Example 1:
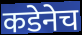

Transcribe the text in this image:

कडेनेच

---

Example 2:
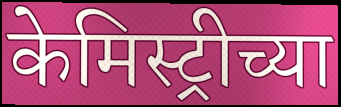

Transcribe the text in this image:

केमिस्ट्रीच्या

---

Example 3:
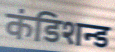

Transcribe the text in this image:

कंडिशन्ड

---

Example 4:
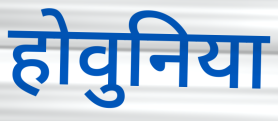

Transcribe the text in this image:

होवुनिया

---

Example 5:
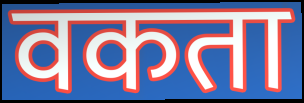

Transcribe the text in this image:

वकता